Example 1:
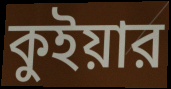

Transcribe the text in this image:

কুইয়ার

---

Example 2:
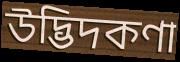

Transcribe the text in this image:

উদ্ভিদকণা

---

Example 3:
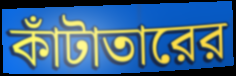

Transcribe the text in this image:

কাঁটাতারের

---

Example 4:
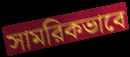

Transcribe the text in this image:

সামরিকভাবে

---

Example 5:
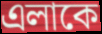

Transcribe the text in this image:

এলাকে